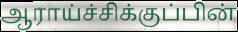
ஆராய்ச்சிக்குப்பின்